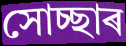
সোচ্ছাৰ